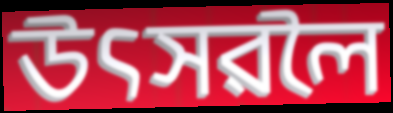
উৎসৱলৈ